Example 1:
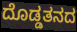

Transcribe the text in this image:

ದೊಡ್ಡತನದ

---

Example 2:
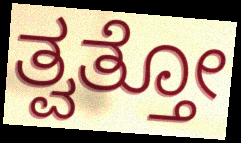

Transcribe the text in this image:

ತ್ವತ್ತೋ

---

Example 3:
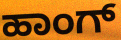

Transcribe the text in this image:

ಹಾಂಗ್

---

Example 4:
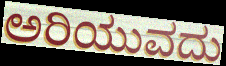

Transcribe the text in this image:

ಅರಿಯುವದು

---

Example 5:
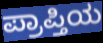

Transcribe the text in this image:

ಪ್ರಾಪ್ತಿಯ